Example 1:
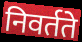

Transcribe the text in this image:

निवर्तते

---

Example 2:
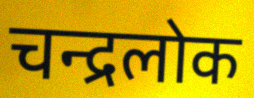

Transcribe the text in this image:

चन्द्रलोक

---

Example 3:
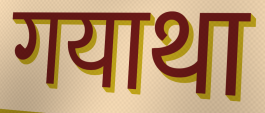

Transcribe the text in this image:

गयाथा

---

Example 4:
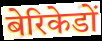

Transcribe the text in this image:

बेरिकेडों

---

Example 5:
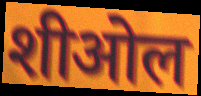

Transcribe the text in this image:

शीओल